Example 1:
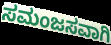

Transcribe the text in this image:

ಸಮಂಜಸವಾಗಿ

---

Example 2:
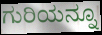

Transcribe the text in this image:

ಗುರಿಯನ್ನೂ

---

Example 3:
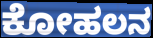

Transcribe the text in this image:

ಕೋಹಲನ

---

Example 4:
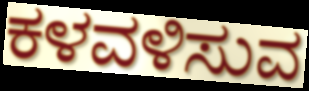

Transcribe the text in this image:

ಕಳವಳಿಸುವ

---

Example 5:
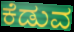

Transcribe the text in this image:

ಕೆಡುವ